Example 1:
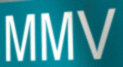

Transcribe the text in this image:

MMV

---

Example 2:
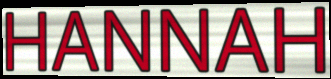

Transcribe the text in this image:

HANNAH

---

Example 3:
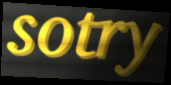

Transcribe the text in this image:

sotry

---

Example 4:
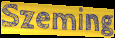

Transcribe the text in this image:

Szeming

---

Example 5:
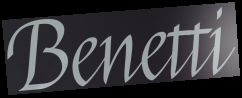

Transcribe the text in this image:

Benetti